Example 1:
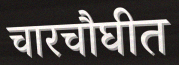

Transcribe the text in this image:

चारचौघीत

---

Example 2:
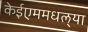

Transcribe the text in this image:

केईएममधल्या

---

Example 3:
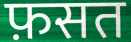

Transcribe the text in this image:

फ़सत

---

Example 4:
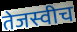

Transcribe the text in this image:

तेजस्वीच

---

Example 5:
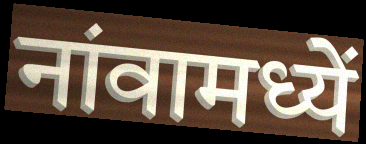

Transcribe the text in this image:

नांवामध्यें